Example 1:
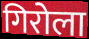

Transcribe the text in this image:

गिरोला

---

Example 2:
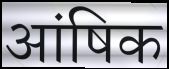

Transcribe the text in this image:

आंषिक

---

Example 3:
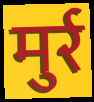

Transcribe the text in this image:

मुर्र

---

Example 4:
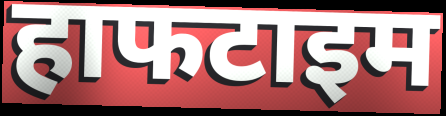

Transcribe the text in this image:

हाफटाइम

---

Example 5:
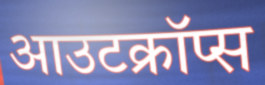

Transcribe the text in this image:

आउटक्रॉप्स